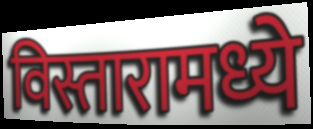
विस्तारामध्ये